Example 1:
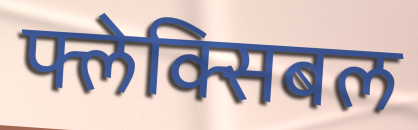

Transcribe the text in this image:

फ्लेक्सिबल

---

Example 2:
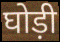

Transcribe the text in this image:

घोड़ी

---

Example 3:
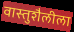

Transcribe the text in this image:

वास्तुशैलीला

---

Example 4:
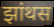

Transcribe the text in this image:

झांथस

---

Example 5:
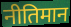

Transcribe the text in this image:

नीतिमान